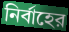
নির্বাহের